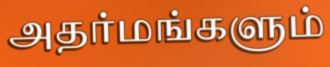
அதர்மங்களும்